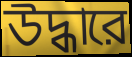
উদ্ধারে